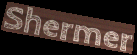
Shermer